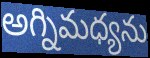
అగ్నిమధ్యను